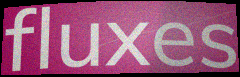
fluxes